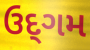
ઉદ્‌ગમ